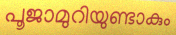
പൂജാമുറിയുണ്ടാകും